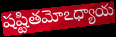
షష్టితమోఽధ్యాయ